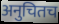
अनुचितच